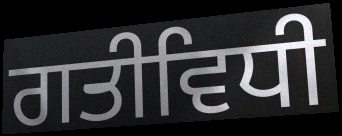
ਗਤੀਵਿਧੀ